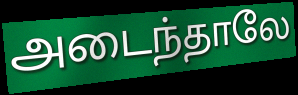
அடைந்தாலே